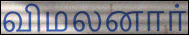
விமலனார்